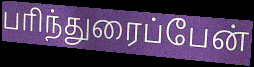
பரிந்துரைப்பேன்